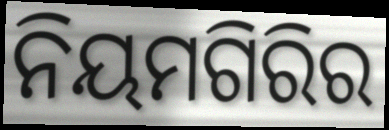
ନିୟମଗିରିର